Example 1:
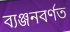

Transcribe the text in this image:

ব্যঞ্জনবৰ্ণত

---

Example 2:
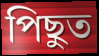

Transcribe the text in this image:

পিছুত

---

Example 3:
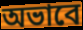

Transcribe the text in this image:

অভাবে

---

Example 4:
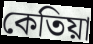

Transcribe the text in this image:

কেতিয়া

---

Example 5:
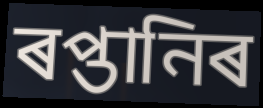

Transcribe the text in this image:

ৰপ্তানিৰ